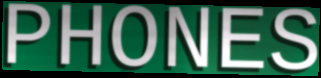
PHONES